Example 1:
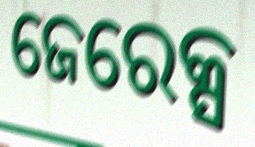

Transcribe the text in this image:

ଜେରେକ୍ସ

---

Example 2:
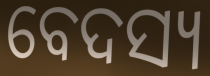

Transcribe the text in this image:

ବେଦସ୍ୟ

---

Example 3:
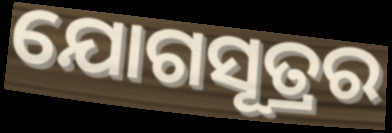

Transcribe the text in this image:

ଯୋଗସୂତ୍ରର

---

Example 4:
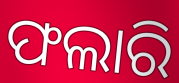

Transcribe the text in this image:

ଫଲାରି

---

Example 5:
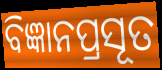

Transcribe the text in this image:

ବିଜ୍ଞାନପ୍ରସୂତ